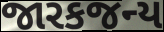
જારકજન્ય